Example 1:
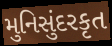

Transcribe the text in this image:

મુનિસુંદરકૃત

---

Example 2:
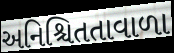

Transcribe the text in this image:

અનિશ્ચિતતાવાળા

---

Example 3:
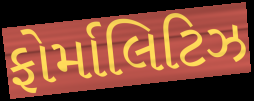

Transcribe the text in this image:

ફોર્માલિટિઝ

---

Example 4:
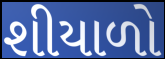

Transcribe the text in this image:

શીયાળો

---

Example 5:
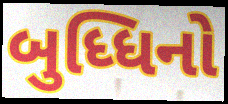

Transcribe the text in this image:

બુધ્ધિનો